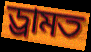
ড্ৰামত